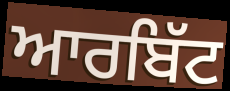
ਆਰਬਿੱਟ